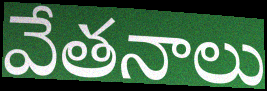
వేతనాలు